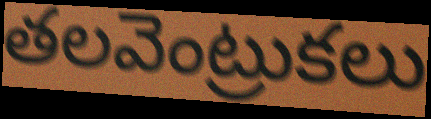
తలవెంట్రుకలు